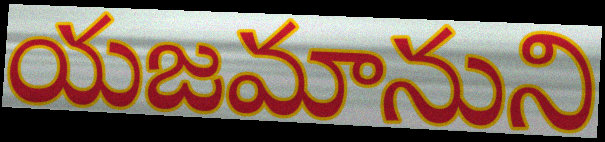
యజమానుని